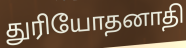
துரியோதனாதி